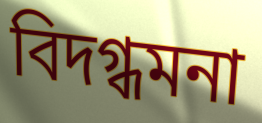
বিদগ্ধমনা